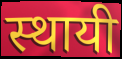
स्थायी